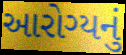
આરોગ્યનું